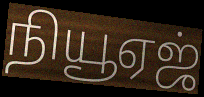
நியூஏஜ்